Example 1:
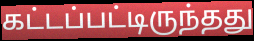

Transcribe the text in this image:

கட்டப்பட்டிருந்தது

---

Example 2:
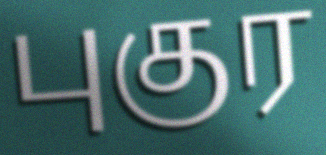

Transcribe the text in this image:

புகுர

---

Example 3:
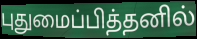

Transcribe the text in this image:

புதுமைப்பித்தனில்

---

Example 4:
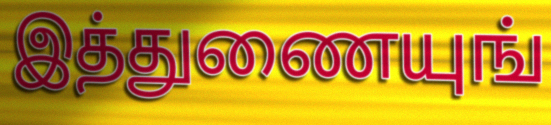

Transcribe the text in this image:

இத்துணையுங்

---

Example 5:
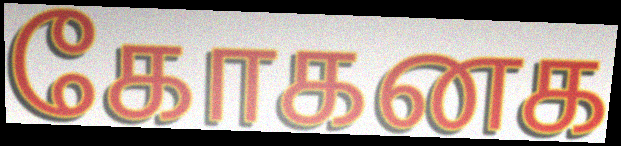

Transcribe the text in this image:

கோகனக